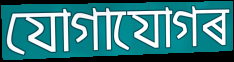
যোগাযোগৰ